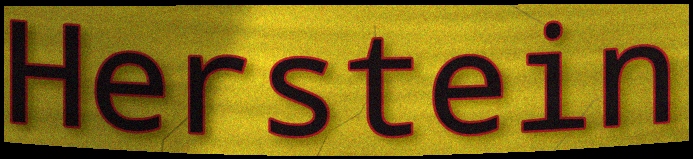
Herstein